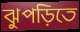
ঝুপড়িতে